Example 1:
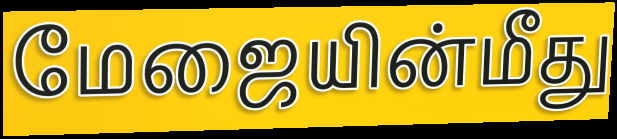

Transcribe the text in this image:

மேஜையின்மீது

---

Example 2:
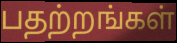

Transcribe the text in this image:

பதற்றங்கள்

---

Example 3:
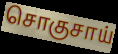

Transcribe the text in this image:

சொகுசாய்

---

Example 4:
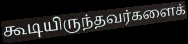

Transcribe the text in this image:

கூடியிருந்தவர்களைக்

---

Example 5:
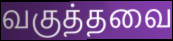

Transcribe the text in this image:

வகுத்தவை